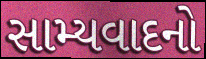
સામ્યવાદનો